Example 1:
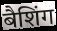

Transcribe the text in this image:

बैशिंग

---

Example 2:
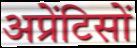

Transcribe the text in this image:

अप्रेंटिसों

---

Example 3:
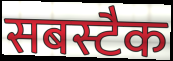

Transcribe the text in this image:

सबस्टैक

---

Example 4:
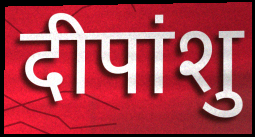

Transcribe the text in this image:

दीपांशु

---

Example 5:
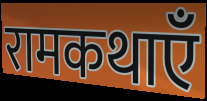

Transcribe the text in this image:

रामकथाएँ